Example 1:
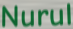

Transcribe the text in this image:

Nurul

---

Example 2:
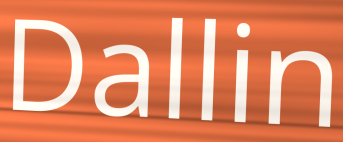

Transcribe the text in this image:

Dallin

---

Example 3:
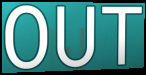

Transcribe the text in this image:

OUT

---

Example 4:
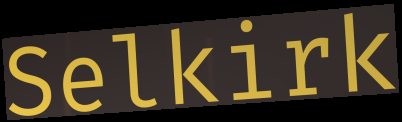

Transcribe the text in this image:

Selkirk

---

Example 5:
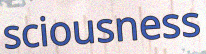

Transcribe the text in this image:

sciousness